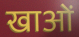
खाओं